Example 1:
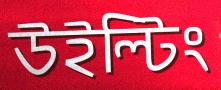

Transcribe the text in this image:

উইল্টিং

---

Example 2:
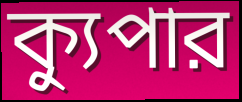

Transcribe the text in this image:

ক্যুপার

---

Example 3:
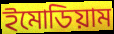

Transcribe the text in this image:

ইমোডিয়াম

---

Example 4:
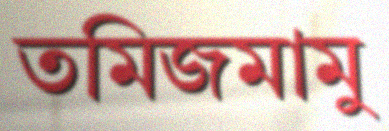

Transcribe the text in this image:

তমিজমামু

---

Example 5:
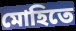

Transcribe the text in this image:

মোহিতে